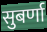
सुबर्णा